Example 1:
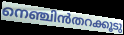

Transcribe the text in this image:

നെഞ്ചിൻതറക്കൂടു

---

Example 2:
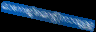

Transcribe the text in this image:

മാനേജ്മെന്റിനായുള്ള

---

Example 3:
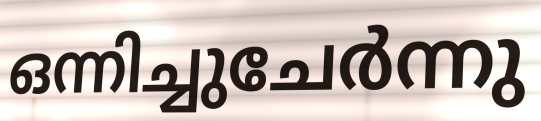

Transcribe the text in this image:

ഒന്നിച്ചുചേർന്നു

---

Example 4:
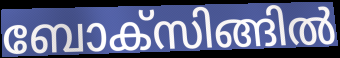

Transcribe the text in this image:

ബോക്സിങ്ങിൽ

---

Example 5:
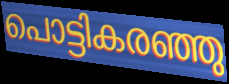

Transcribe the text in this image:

പൊട്ടികരഞ്ഞു